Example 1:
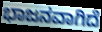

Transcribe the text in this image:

ಭಾಜನವಾಗಿದೆ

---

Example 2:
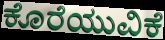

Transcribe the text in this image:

ಕೊರೆಯುವಿಕೆ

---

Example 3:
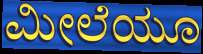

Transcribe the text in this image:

ಮೀಲೆಯೂ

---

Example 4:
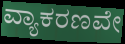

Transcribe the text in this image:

ವ್ಯಾಕರಣವೇ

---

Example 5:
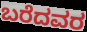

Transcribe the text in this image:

ಬರೆದವರ